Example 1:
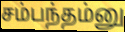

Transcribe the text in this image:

சம்பந்தம்னு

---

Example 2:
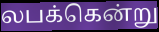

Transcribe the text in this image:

லபக்கென்று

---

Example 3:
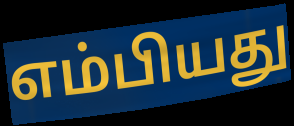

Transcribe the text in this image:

எம்பியது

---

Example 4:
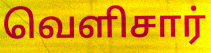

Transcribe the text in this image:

வெளிசார்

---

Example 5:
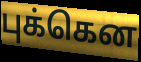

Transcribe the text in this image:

புக்கென